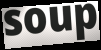
soup